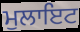
ਮੁਲਾਇਟ